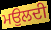
ਮਉਲਦੀ